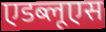
एडब्लूएस